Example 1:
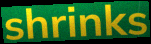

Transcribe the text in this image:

shrinks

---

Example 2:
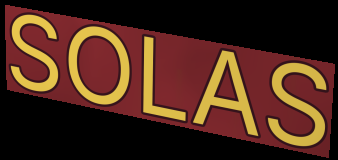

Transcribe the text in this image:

SOLAS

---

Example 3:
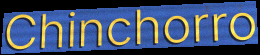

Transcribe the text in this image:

Chinchorro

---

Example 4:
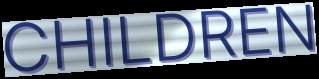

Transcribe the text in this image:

CHILDREN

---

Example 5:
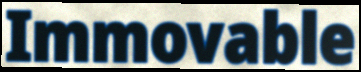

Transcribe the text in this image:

Immovable